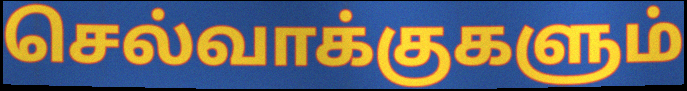
செல்வாக்குகளும்